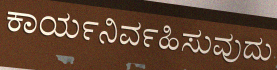
ಕಾರ್ಯನಿರ್ವಹಿಸುವುದು